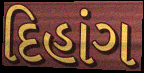
દિહાંગ